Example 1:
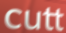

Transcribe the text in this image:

cutt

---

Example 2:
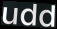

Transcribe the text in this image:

udd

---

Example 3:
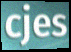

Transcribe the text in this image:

cjes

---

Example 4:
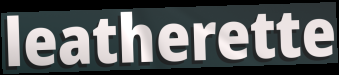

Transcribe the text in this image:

leatherette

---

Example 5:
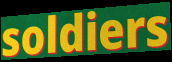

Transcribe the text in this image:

soldiers